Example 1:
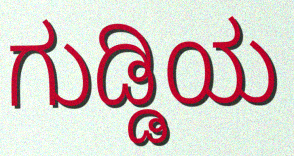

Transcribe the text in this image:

ಗುಡ್ಡಿಯ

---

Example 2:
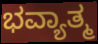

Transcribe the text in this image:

ಭವ್ಯಾತ್ಮ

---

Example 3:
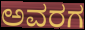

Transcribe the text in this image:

ಅವರಗ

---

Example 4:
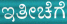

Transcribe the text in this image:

ಇತೀಚೆಗೆ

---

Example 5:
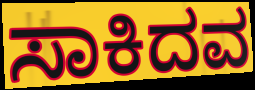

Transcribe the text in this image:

ಸಾಕಿದವ